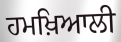
ਹਮਖ਼ਿਆਲੀ